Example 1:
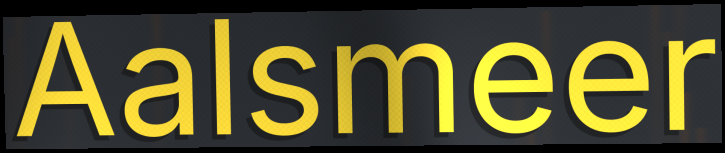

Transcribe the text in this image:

Aalsmeer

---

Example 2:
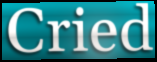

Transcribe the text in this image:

Cried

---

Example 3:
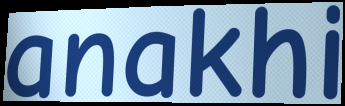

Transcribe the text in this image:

anakhi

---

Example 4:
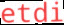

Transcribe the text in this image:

etdi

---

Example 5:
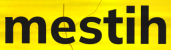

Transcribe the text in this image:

mestih